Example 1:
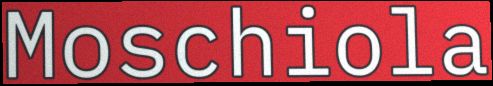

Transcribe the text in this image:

Moschiola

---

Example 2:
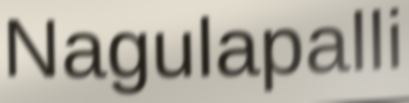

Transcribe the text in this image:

Nagulapalli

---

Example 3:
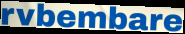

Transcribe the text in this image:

rvbembare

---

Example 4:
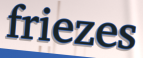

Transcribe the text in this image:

friezes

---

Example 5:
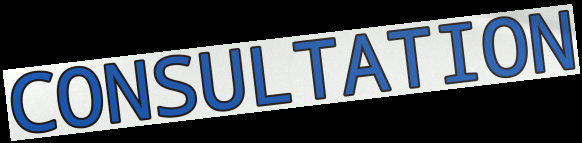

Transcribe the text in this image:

CONSULTATION